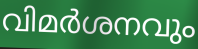
വിമർശനവും